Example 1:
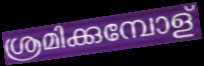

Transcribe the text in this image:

ശ്രമിക്കുമ്പോള്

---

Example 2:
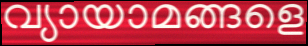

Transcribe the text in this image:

വ്യായാമങ്ങളെ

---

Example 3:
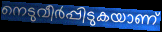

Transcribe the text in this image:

നെടുവീർപ്പിടുകയാണ്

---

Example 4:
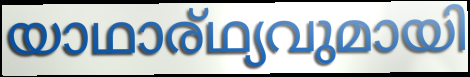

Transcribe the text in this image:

യാഥാര്ഥ്യവുമായി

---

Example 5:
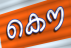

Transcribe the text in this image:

കൌ